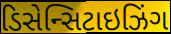
ડિસેન્સિટાઇઝિંગ